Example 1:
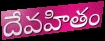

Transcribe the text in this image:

దేవహితం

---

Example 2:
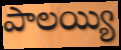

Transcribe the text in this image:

పాలయ్యి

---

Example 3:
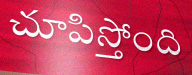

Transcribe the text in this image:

చూపిస్తోంది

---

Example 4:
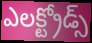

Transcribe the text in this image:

ఎలక్ట్రోడ్స్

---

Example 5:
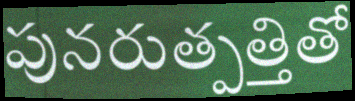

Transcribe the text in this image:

పునరుత్పత్తితో